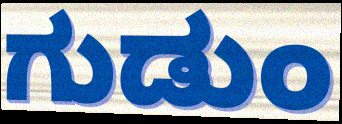
ಗುಡುಂ